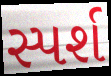
સ્પર્શ